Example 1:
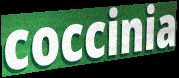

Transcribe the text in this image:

coccinia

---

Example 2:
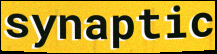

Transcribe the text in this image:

synaptic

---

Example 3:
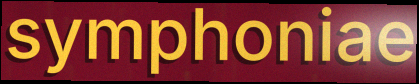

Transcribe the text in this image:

symphoniae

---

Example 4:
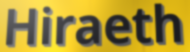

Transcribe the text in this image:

Hiraeth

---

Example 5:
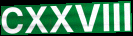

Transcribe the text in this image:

CXXVIII